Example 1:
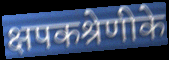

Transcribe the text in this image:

क्षपकश्रेणीके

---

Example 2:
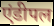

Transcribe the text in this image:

एंडीपल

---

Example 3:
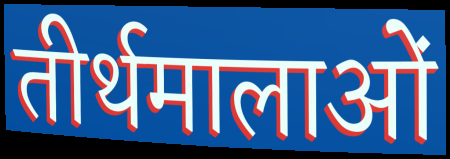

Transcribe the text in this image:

तीर्थमालाओं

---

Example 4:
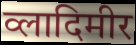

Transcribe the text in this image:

व्‍लादिमीर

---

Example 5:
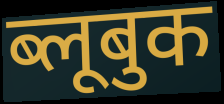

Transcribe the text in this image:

ब्लूबुक